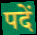
पदें